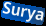
Surya